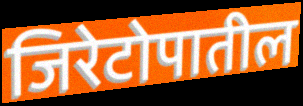
जिरेटोपातील